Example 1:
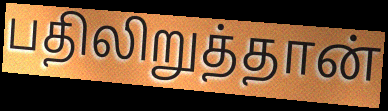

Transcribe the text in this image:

பதிலிறுத்தான்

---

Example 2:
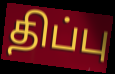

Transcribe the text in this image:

திப்பு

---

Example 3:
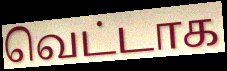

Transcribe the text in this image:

வெட்டாக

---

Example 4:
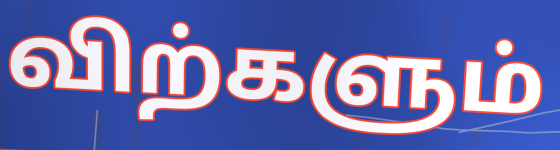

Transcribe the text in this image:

விற்களும்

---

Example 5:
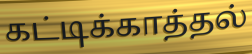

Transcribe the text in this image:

கட்டிக்காத்தல்